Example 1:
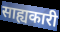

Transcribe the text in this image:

साह्यकारी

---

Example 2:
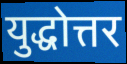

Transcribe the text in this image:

युद्धोत्तर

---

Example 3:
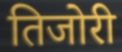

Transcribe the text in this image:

तिजोरी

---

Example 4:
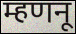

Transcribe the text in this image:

म्हणनू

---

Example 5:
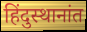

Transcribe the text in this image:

हिंदुस्थानांत